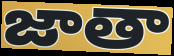
జాతా